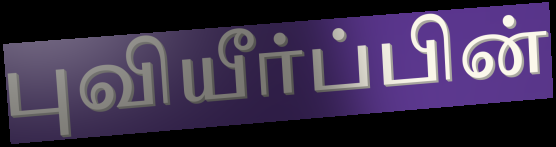
புவியீர்ப்பின்